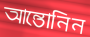
আন্তোনিন